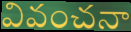
వివంచనా